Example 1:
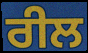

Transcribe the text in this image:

ਰੀਲ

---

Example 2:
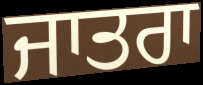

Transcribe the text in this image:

ਜਾਤਰਾ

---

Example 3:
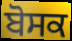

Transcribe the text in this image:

ਬੋਸਕ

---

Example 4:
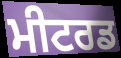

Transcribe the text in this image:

ਮੀਟਰਡ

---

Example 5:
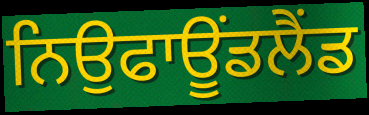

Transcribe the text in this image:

ਨਿਉਫਾਊਂਡਲੈਂਡ